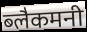
ब्‍लैकमनी